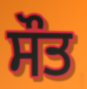
ਸੌਤ